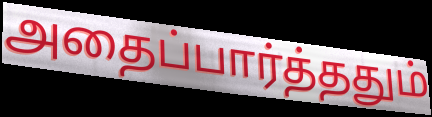
அதைப்பார்த்ததும்